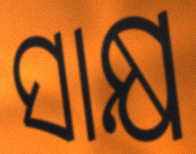
ସାକ୍ଷ